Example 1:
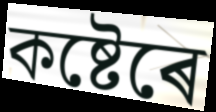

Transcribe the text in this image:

কষ্টেৰে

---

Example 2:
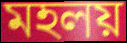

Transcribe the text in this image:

মহলয়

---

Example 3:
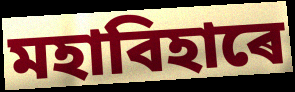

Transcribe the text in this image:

মহাবিহাৰে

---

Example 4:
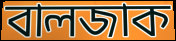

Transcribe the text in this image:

বালজাক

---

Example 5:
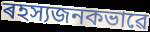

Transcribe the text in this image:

ৰহস্যজনকভাৱে